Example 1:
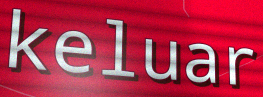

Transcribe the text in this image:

keluar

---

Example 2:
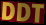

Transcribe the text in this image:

DDT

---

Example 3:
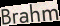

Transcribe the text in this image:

Brahm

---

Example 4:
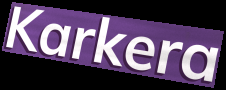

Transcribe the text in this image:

Karkera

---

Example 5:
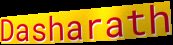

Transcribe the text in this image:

Dasharath